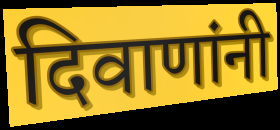
दिवाणांनी